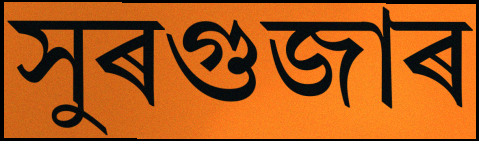
সুৰগুজাৰ